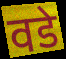
वडे